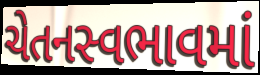
ચેતનસ્વભાવમાં